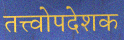
तत्त्वोपदेशक